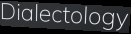
Dialectology